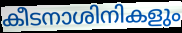
കീടനാശിനികളും